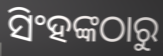
ସିଂହଙ୍କଠାରୁ